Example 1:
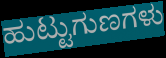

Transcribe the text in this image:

ಹುಟ್ಟುಗುಣಗಳು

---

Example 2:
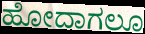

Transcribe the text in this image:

ಹೋದಾಗಲೂ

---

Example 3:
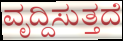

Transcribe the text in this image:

ವೃದ್ದಿಸುತ್ತದೆ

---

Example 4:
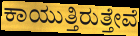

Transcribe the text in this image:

ಕಾಯುತ್ತಿರುತ್ತೇವೆ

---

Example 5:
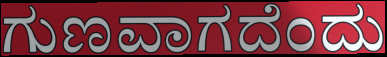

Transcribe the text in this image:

ಗುಣವಾಗದೆಂದು